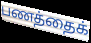
பணத்தைக்